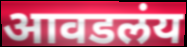
आवडलंय